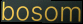
bosom